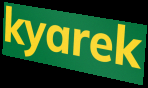
kyarek